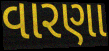
વારણા